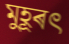
মুহূৰৎ